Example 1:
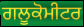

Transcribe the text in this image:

ਗਲੂਕੋਮੀਟਰ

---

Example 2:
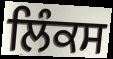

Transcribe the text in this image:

ਲਿੰਕਸ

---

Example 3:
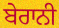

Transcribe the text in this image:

ਬੇਰਾਨੀ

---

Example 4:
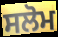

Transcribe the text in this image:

ਸਲੋਮ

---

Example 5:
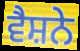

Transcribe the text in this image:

ਵੈਸ਼ਨੇ